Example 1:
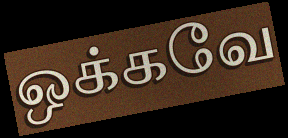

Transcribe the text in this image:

ஒக்கவே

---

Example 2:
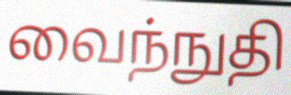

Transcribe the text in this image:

வைந்நுதி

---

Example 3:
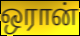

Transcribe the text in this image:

ஒரான்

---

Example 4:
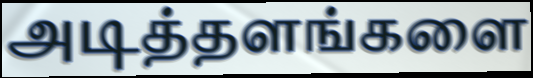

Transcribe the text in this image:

அடித்தளங்களை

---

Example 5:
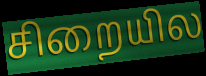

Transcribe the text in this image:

சிறையில